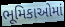
ભૂમિકાઓમાં